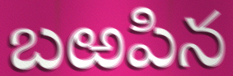
బఱపిన